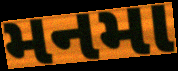
મનમા